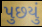
પુછયું